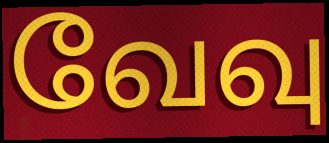
வேவு